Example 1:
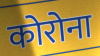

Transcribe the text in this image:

कोरोना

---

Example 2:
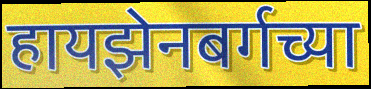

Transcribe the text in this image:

हायझेनबर्गच्या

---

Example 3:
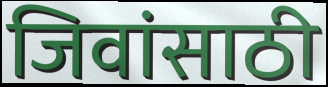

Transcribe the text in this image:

जिवांसाठी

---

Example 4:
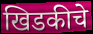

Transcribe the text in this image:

खिडकीचे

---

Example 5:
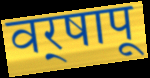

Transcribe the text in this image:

वर्षापू